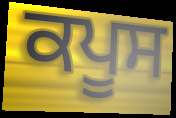
ਕਪੂਸ